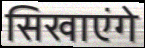
सिखाएंगे